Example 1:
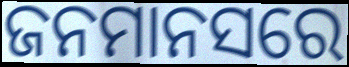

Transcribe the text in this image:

ଜନମାନସରେ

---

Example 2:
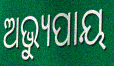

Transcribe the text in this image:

ଅଭ୍ୟୁପାୟ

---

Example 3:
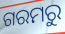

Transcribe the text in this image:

ଗରମରୁ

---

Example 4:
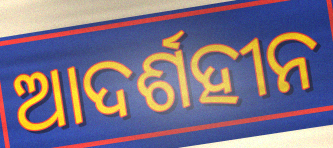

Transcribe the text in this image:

ଆଦର୍ଶହୀନ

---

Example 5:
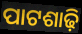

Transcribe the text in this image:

ପାଟଶାଢ଼ି